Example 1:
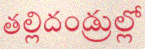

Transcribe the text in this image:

తల్లిదండ్రుల్లో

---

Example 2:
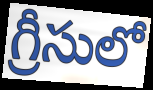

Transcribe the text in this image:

గ్రీసులో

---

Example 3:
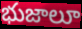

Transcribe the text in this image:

భుజాలూ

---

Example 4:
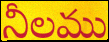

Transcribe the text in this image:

నీలము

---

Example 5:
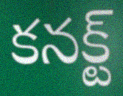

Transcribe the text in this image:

కనక్ట్